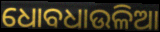
ଧୋବଧାଉଳିଆ